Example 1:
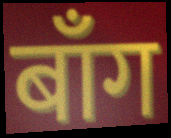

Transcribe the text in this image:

बाँग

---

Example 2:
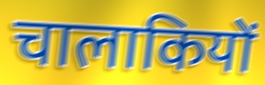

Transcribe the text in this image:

चालाकियों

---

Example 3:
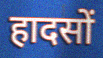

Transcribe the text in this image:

हादसों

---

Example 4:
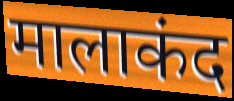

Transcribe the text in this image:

मालाकंद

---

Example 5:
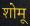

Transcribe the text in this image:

शोमू